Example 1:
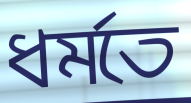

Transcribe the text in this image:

ধর্মতে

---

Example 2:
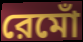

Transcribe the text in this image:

রেমোঁ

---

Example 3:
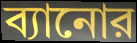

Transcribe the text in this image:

ব্যানোর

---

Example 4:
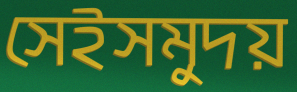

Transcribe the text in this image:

সেইসমুদয়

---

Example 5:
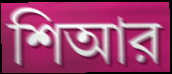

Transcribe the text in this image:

শিআর